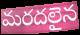
మరదలైన